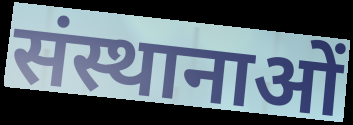
संस्थानाओं